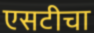
एसटीचा